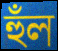
হুঁল